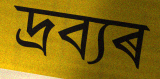
দ্ৰব্যৰ